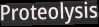
Proteolysis